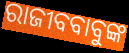
ରାଜୀବବାବୁଙ୍କ